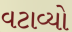
વટાવ્યો